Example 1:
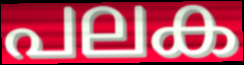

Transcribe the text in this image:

പലക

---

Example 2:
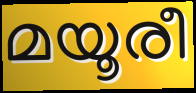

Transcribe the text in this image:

മയൂരീ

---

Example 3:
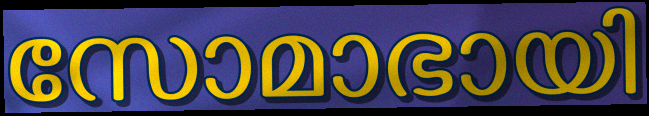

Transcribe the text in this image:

സോമാഭായി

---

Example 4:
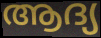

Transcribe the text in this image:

ആദ്യ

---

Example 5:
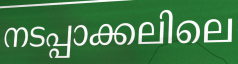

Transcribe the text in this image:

നടപ്പാക്കലിലെ